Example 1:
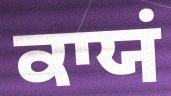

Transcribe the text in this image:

ਕਾਯਂ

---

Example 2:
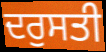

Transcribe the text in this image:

ਦਰੁਸਤੀ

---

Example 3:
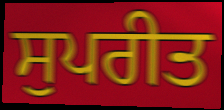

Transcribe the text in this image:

ਸੁਪਰੀਤ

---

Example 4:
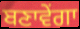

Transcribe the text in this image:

ਬਣਾਵੇਂਗਾ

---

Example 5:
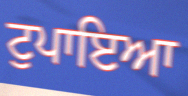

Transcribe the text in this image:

ਟੁਪਾਇਆ